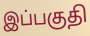
இப்பகுதி